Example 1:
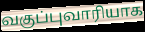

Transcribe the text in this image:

வகுப்புவாரியாக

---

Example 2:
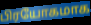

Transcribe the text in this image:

பிரயோகமாக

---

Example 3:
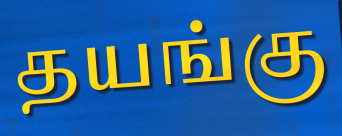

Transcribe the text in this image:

தயங்கு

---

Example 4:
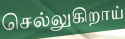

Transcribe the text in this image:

செல்லுகிறாய்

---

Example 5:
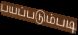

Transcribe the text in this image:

பயப்படும்படி